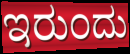
ಇರುಂದು